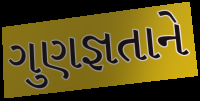
ગુણજ્ઞતાને